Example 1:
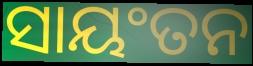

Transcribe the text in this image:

ସାୟଂତନ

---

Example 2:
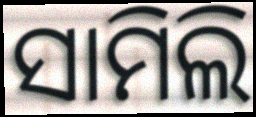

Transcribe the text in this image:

ସାମିଲି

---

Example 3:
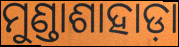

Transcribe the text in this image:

ମୁଣ୍ଡାଶାହାଡ଼ା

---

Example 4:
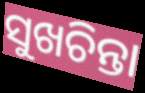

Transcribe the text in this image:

ସୁଖଚିନ୍ତା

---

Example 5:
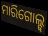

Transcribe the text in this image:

ମାରିଗୋଲ୍ଡ୍